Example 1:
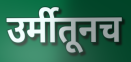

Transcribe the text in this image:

उर्मीतूनच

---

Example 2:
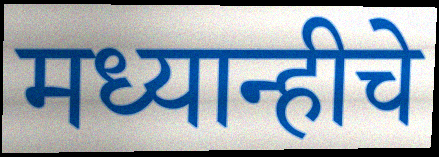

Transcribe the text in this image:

मध्यान्हीचे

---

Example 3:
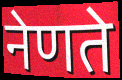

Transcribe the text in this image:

नेणते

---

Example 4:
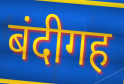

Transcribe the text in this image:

बंदीगह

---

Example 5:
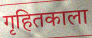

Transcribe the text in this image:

गृहितकाला